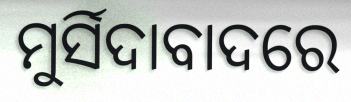
ମୁର୍ସିଦାବାଦରେ